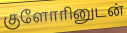
குளோரினுடன்